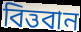
বিত্তবান